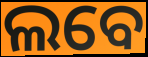
ଲବେ